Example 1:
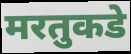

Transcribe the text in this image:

मरतुकडे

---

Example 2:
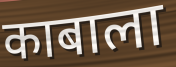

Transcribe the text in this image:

काबाला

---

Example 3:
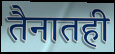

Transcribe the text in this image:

तैनातही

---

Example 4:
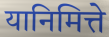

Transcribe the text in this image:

यानिमित्ते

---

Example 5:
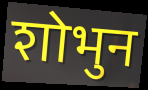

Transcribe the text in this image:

शोभुन